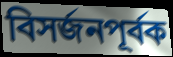
বিসর্জনপূর্বক